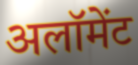
अलॉमेंट